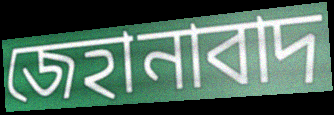
জেহানাবাদ